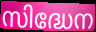
സിദ്ധേന